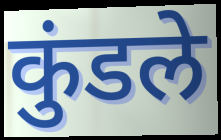
कुंडले